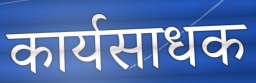
कार्यसाधक